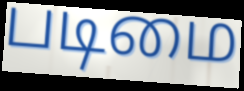
படிமை